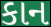
કાન